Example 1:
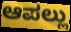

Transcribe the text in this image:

ಆಪಲ್ಲು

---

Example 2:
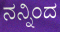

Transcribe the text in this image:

ನನ್ನಿಂದ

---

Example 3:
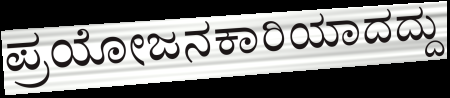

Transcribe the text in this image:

ಪ್ರಯೋಜನಕಾರಿಯಾದದ್ದು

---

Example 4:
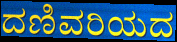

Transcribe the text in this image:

ದಣಿವರಿಯದ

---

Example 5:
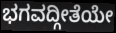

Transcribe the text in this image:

ಭಗವದ್ಗೀತೆಯೇ